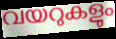
വയറുകളും